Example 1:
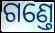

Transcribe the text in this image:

ଗଣ୍ତେ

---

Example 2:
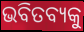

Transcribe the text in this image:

ଭବିତବ୍ୟକୁ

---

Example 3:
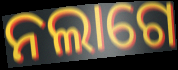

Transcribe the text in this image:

ନଲାଗେ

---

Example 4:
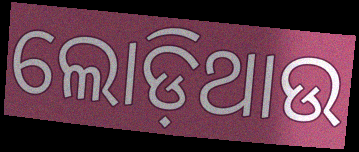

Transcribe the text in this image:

ଲୋଡ଼ିଥାଉ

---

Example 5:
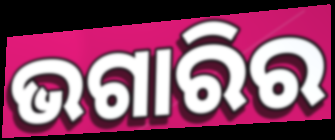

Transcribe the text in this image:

ଭଗାରିର